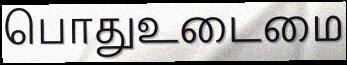
பொதுஉடைமை